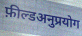
फ़ील्डअनुप्रयोग